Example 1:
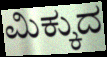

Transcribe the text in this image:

ಮಿಕ್ಕುದ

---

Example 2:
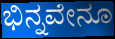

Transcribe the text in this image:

ಭಿನ್ನವೇನೂ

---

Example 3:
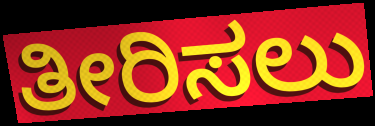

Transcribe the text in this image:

ತೀರಿಸಲು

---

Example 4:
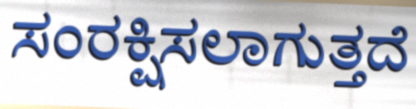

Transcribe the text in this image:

ಸಂರಕ್ಷಿಸಲಾಗುತ್ತದೆ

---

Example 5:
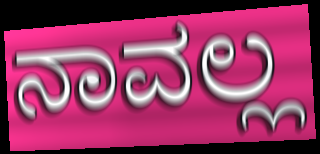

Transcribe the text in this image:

ನಾವಲ್ಲ